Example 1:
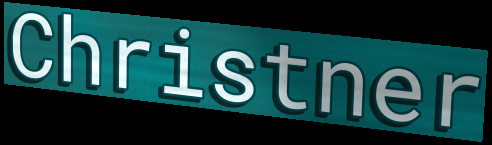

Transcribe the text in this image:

Christner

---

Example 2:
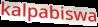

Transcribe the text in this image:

kalpabiswa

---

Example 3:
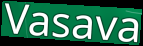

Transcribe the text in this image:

Vasava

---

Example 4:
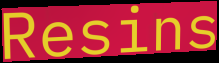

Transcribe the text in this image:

Resins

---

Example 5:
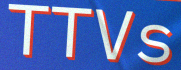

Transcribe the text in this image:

TTVs